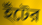
ইঁটের